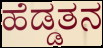
ಹೆಡ್ಡತನ